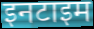
इनटाइम